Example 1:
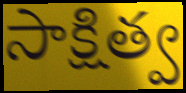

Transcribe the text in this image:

సాక్షిత్వ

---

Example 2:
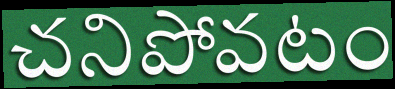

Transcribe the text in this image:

చనిపోవటం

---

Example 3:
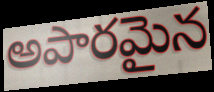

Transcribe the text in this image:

అపారమైన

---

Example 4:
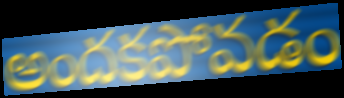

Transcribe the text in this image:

అందకపోవడం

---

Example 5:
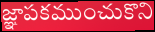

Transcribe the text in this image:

జ్ఞాపకముంచుకొని